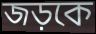
জড়কে